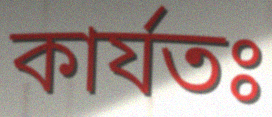
কার্যতঃ